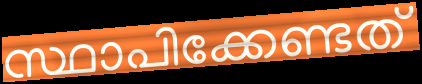
സ്ഥാപിക്കേണ്ടത്